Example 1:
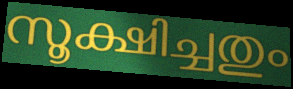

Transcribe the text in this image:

സൂക്ഷിച്ചതും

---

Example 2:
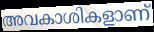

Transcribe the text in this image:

അവകാശികളാണ്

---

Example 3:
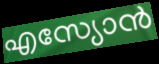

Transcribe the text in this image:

എസ്യോൻ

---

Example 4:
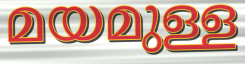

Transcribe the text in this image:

മയമുള്ള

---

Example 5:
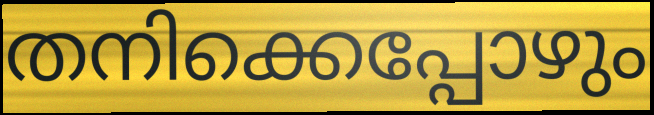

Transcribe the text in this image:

തനിക്കെപ്പോഴും